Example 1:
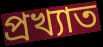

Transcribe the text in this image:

প্রখ্যাত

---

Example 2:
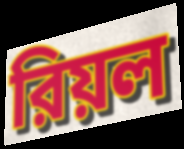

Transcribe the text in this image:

রিয়ল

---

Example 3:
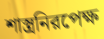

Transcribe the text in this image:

শাস্ত্রনিরপেক্ষ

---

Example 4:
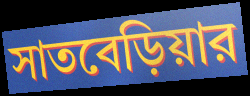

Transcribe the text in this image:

সাতবেড়িয়ার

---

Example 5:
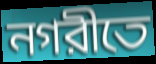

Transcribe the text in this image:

নগরীতে